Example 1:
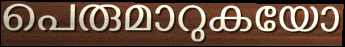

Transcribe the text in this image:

പെരുമാറുകയോ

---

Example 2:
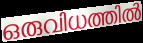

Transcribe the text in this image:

ഒരുവിധത്തിൽ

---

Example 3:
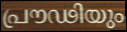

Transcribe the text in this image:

പ്രൗഢിയും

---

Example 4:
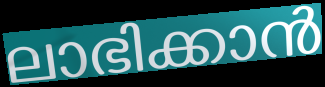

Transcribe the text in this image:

ലാഭിക്കാൻ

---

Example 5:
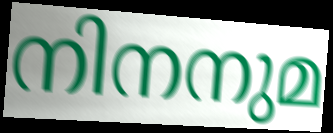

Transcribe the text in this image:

നിനനുമ